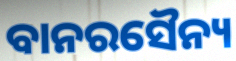
ବାନରସୈନ୍ୟ